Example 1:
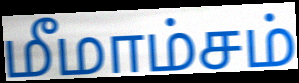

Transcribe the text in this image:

மீமாம்சம்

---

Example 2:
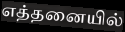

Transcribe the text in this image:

எத்தனையில்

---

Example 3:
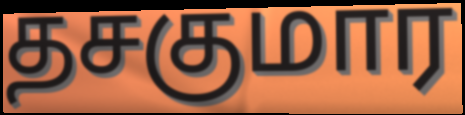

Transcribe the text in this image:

தசகுமார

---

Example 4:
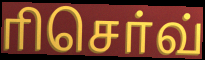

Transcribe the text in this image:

ரிசெர்வ்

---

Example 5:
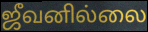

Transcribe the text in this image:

ஜீவனில்லை